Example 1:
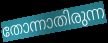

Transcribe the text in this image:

തോന്നാതിരുന്ന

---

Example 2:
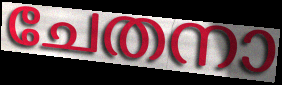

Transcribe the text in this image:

ചേതനാ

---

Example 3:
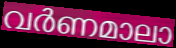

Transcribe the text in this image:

വർണമാലാ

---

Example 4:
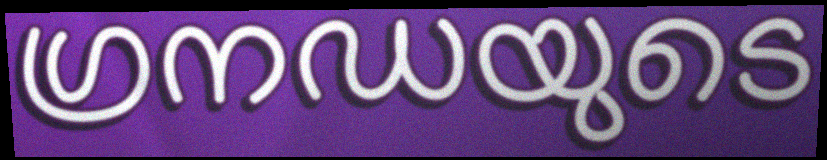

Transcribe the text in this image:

ഗ്രനഡയുടെ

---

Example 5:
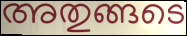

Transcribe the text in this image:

അതുങ്ങടെ